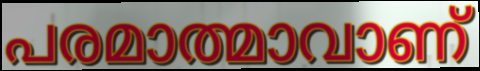
പരമാത്മാവാണ്